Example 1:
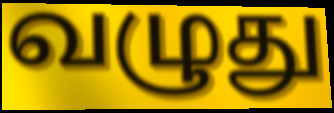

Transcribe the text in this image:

வழுது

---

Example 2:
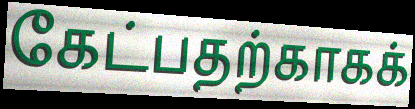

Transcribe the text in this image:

கேட்பதற்காகக்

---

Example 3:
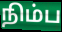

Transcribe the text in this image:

நிம்ப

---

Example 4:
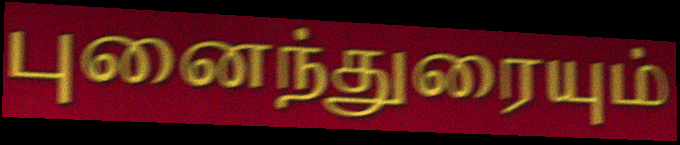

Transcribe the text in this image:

புனைந்துரையும்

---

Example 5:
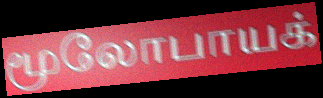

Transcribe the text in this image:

மூலோபாயக்